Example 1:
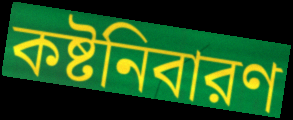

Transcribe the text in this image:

কষ্টনিবারণ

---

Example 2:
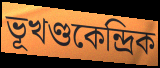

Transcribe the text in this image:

ভূখণ্ডকেন্দ্রিক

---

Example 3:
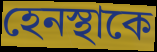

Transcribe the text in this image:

হেনস্থাকে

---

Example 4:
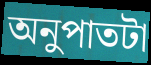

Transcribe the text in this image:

অনুপাতটা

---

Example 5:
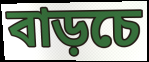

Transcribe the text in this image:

বাড়চে